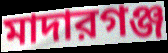
মাদারগঞ্জ